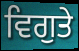
ਵਿਗੁਤੇ